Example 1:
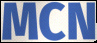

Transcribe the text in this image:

MCN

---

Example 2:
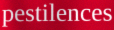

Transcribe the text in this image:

pestilences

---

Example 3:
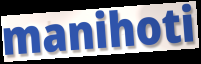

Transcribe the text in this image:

manihoti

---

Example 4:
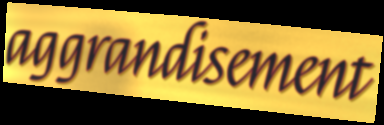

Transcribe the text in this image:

aggrandisement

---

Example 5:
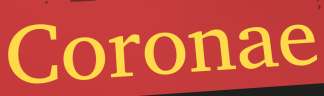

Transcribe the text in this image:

Coronae